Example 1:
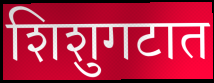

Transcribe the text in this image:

शिशुगटात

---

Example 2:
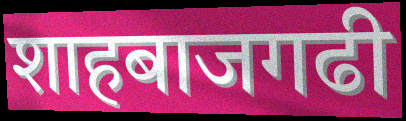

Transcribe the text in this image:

शाहबाजगढी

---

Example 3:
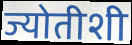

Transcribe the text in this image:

ज्योतीशी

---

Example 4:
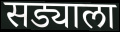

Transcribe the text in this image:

सड्याला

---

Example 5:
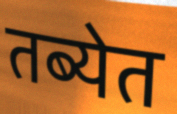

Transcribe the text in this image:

तब्येत